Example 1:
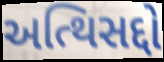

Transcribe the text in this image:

અત્થિસદ્દો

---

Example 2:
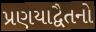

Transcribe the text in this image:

પ્રણયાદ્વૈતનો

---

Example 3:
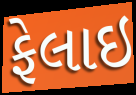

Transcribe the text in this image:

ફેલાઇ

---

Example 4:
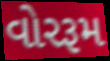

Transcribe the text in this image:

વોરરૂમ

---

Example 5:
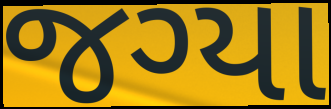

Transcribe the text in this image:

જગ્યા